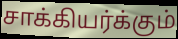
சாக்கியர்க்கும்